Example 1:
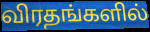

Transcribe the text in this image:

விரதங்களில்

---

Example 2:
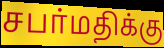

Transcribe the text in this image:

சபர்மதிக்கு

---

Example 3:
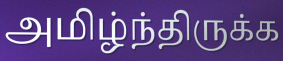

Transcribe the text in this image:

அமிழ்ந்திருக்க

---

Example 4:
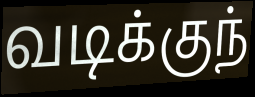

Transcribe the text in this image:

வடிக்குந்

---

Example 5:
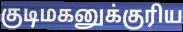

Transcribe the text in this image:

குடிமகனுக்குரிய